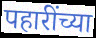
पहारींच्या